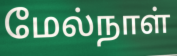
மேல்நாள்